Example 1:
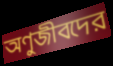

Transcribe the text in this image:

অণুজীবদের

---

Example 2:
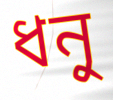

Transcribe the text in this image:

ধনু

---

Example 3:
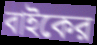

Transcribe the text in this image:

বাইকের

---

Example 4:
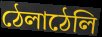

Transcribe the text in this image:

ঠেলাঠেলি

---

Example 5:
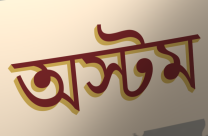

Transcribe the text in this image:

অস্টম